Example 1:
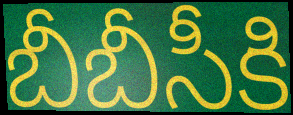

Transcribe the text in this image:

బీబీసీకి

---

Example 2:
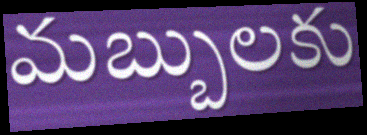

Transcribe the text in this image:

మబ్బులకు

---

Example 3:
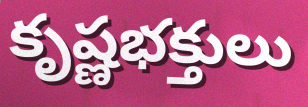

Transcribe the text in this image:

కృష్ణభక్తులు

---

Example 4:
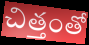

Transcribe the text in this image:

చిత్తంతో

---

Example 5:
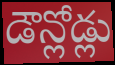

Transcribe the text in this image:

డౌన్లోడ్లు